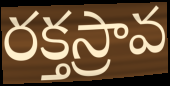
రక్తస్రావ